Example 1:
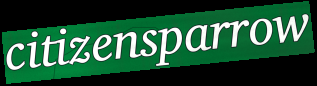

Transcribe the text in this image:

citizensparrow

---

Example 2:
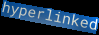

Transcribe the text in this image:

hyperlinked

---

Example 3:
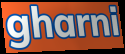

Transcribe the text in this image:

gharni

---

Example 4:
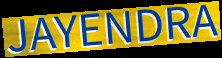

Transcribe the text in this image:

JAYENDRA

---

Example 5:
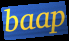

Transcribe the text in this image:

baap